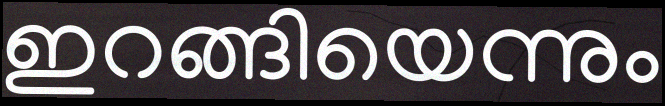
ഇറങ്ങിയെന്നും